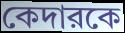
কেদারকে